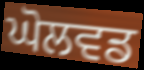
ਘੋਲਵਡ